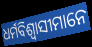
ଧର୍ମବିଶ୍ଵାସୀମାନେ